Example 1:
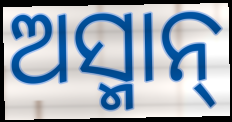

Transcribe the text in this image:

ଅସ୍ମାନ୍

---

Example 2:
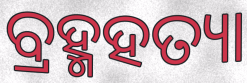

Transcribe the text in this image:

ବ୍ରହ୍ମହତ୍ୟା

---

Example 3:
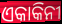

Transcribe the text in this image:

ଏକାକିନୀ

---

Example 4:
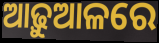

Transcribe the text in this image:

ଆଢ଼ୁଆଳରେ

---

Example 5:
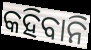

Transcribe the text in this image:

କହିବାନି